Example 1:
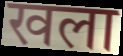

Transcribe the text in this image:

खला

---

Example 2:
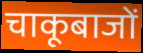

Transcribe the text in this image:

चाकूबाजों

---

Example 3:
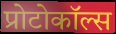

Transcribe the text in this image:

प्रोटोकॉल्स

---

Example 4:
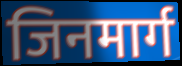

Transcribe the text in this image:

जिनमार्ग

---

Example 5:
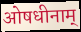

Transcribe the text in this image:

ओषधीनाम्